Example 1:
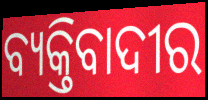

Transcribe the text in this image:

ବ୍ୟକ୍ତିବାଦୀର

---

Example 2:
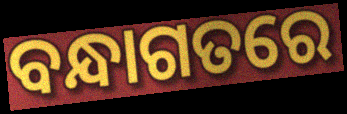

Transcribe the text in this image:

ବନ୍ଧାଗତରେ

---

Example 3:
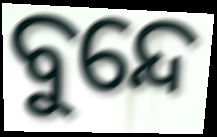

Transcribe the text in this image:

ବୁନ୍ଦେ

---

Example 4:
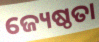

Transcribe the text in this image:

ଜ୍ୟେଷ୍ଠତା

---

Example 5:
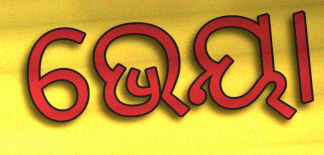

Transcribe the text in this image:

ଭେୟା